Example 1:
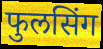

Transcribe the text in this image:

फुलसिंग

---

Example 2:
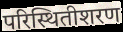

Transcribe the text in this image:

परिस्थितीशरण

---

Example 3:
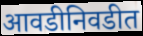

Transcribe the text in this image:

आवडीनिवडीत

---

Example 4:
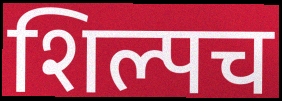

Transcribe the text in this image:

शिल्पच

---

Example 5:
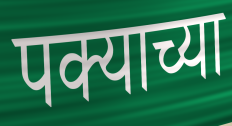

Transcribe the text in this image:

पक्याच्या